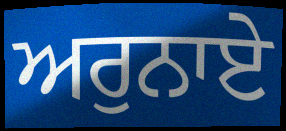
ਅਰੁਨਾਏ